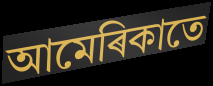
আমেৰিকাতে